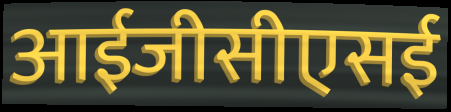
आईजीसीएसई